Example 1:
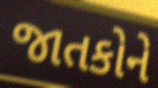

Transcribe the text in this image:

જાતકોને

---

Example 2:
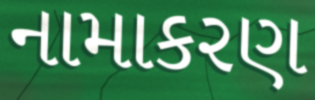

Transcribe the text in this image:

નામાકરણ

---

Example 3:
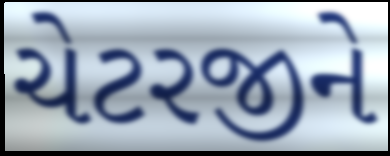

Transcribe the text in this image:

ચેટરજીને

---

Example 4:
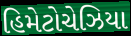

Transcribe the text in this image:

હિમેટોચેઝિયા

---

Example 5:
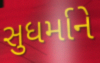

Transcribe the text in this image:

સુધર્માને